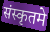
संस्कृतमे